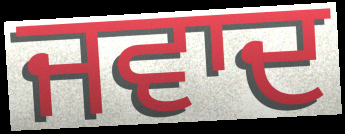
ਜਵਾਦ